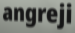
angreji